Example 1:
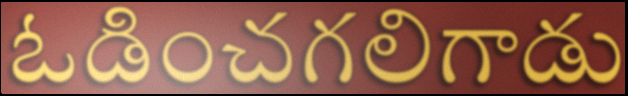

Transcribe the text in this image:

ఓడించగలిగాడు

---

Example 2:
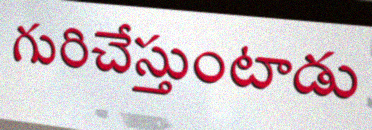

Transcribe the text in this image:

గురిచేస్తుంటాడు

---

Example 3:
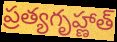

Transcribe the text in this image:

ప్రత్యగృహ్ణాత్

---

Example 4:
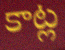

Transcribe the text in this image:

కాట్ల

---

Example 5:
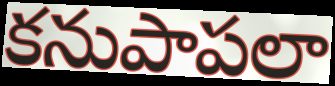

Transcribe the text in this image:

కనుపాపలా